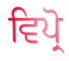
ਵਿਪ੍ਰੋ